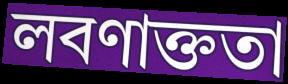
লবণাক্ততা